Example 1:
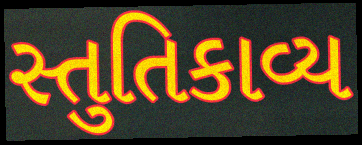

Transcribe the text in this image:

સ્તુતિકાવ્ય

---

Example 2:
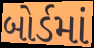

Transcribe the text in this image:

બોર્ડમાં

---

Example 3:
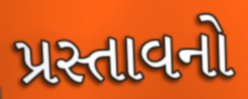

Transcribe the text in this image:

પ્રસ્તાવનો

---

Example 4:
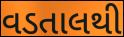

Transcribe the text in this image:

વડતાલથી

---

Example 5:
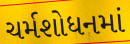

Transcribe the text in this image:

ચર્મશોધનમાં